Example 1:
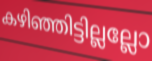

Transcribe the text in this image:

കഴിഞ്ഞിട്ടില്ലല്ലോ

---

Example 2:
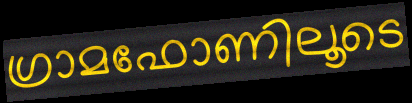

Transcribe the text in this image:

ഗ്രാമഫോണിലൂടെ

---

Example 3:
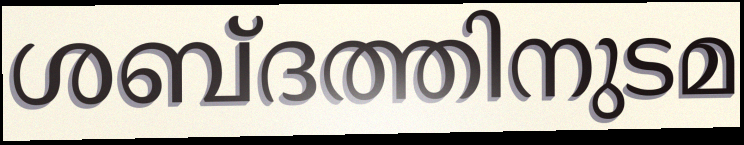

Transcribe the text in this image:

ശബ്ദത്തിനുടമ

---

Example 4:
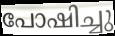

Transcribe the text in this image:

പോഷിച്ചു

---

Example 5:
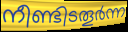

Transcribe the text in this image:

നീണ്ടിടതൂർന്ന